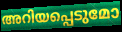
അറിയപ്പെടുമോ